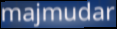
majmudar